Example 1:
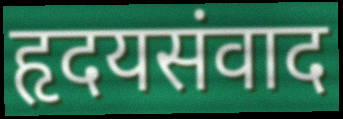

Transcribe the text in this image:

हृदयसंवाद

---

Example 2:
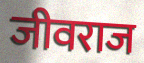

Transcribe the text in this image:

जीवराज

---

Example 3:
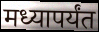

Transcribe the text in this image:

मध्यापर्यंत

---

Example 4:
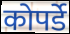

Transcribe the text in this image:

कोपर्डे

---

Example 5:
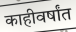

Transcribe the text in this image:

काहीवर्षांत